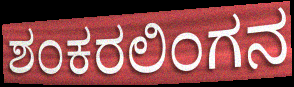
ಶಂಕರಲಿಂಗನ